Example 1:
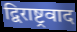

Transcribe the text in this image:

द्विराष्ट्रवाद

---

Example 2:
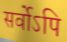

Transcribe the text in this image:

सर्वोऽपि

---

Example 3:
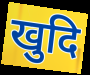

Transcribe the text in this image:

खुदि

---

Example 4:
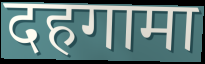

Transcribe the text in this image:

दहगामा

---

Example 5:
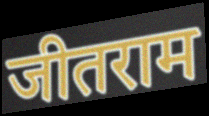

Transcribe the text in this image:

जीतराम